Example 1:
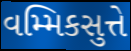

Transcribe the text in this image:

વમ્મિકસુત્તે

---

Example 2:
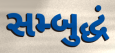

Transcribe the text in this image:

સમ્બુદ્ધં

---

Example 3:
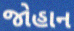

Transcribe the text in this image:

જોહાન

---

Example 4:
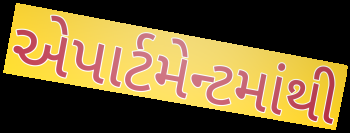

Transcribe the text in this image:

એપાર્ટમેન્ટમાંથી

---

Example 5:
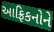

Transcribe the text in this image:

આફ્રિકનોને